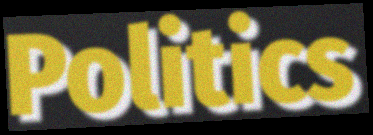
Politics